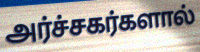
அர்ச்சகர்களால்